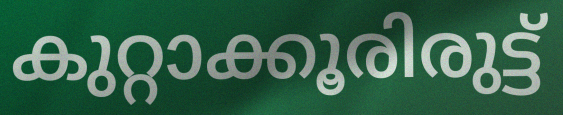
കുറ്റാക്കൂരിരുട്ട്